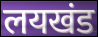
लयखंड